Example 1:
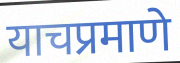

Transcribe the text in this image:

याचप्रमाणे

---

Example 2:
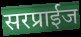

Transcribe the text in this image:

सरप्राईज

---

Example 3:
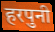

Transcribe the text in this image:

हरपुनी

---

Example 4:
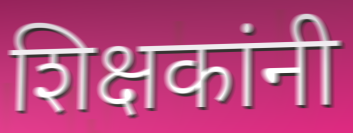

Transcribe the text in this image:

शिक्षकांनी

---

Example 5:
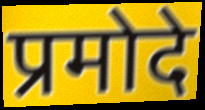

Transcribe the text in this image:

प्रमोदे